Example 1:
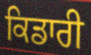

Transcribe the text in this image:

ਕਿਡਾਰੀ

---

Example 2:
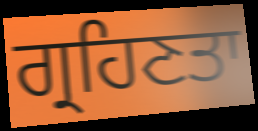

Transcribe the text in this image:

ਗ੍ਰਹਿਣਤਾ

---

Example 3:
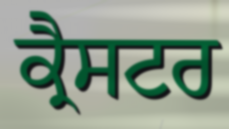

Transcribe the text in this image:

ਕ੍ਰੈਸਟਰ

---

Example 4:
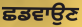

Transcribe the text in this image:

ਛਡਵਾਉਣ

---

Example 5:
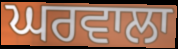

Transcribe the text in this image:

ਘਰਵਾਲਾ